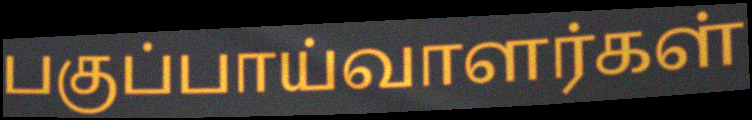
பகுப்பாய்வாளர்கள்